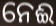
ନେଈ